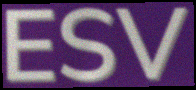
ESV